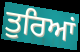
ਤੁਰਿਆਂ